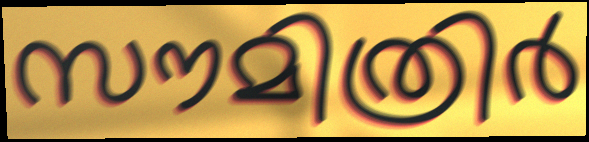
സൗമിത്രിർ